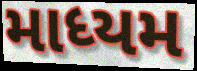
માધ્યમ